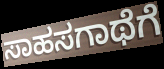
ಸಾಹಸಗಾಥೆಗೆ